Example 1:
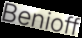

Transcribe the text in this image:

Benioff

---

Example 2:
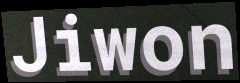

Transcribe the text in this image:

Jiwon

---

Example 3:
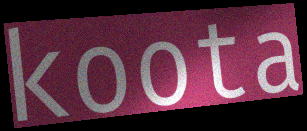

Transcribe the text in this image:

koota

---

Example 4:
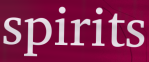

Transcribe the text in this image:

spirits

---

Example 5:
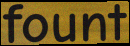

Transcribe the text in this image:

fount